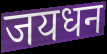
जयधन